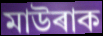
মাউৰাক